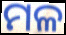
ମଳ